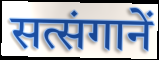
सत्संगानें